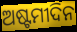
ଅଷ୍ଟମୀଦିନ